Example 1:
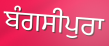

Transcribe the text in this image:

ਬੰਗਸੀਪੁਰਾ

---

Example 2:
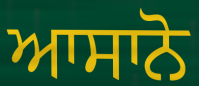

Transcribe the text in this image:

ਆਸਾਨੋ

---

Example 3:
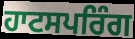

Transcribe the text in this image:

ਹਾਟਸਪਰਿੰਗ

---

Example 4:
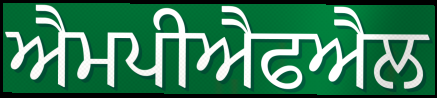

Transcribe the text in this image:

ਐਮਪੀਐਫਐਲ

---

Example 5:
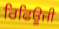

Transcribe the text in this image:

ਰਿਫਿਊਜੀ